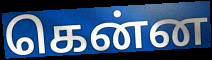
கென்ன